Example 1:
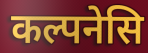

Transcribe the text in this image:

कल्पनेसि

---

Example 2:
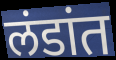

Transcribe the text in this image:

लंडांत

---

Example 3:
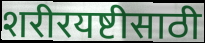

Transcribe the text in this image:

शरीरयष्टीसाठी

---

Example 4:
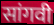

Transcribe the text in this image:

सांगवी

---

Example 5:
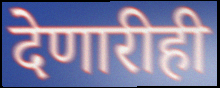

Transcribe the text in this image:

देणारीही